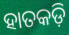
ହାତକଡ଼ି